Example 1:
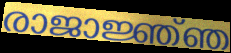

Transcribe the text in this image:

രാജാജ്ഞ്ഞ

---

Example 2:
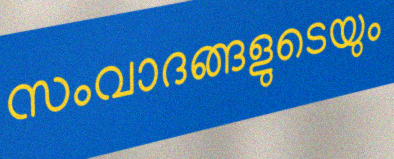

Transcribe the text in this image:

സംവാദങ്ങളുടെയും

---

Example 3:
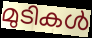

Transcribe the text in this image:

മുടികൾ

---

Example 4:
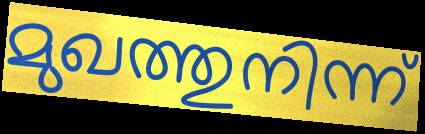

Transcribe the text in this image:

മുഖത്തുനിന്ന്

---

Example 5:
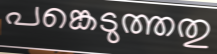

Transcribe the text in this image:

പങ്കെടുത്തതു